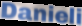
Danieli